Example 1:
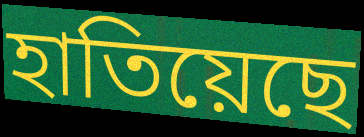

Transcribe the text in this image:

হাতিয়েছে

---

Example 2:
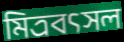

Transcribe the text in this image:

মিত্রবৎসল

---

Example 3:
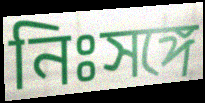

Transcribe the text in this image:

নিঃসঙ্গে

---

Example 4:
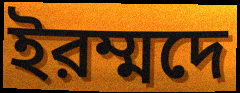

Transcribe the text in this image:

ইরম্মদে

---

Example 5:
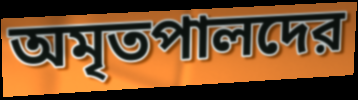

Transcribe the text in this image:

অমৃতপালদের